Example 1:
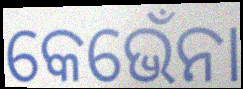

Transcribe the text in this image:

କେଭେଁନା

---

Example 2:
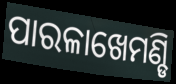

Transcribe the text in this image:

ପାରଳାଖେମଣ୍ଡି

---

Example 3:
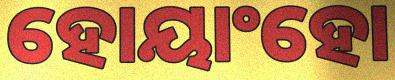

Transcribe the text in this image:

ହୋୟାଂହୋ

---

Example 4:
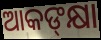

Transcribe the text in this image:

ଆକଙ୍‍କ୍ଷା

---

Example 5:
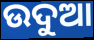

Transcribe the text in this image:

ଉଦୁଆ